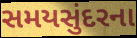
સમયસુંદરના